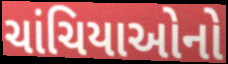
ચાંચિયાઓનો